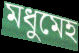
মধুমেহ